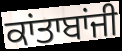
ਕਾਂਤਾਬਾਂਜੀ